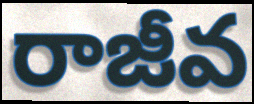
రాజీవ